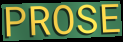
PROSE